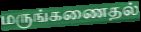
மருங்கணைதல்